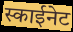
स्काईनेट